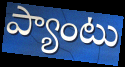
ప్యాంటు